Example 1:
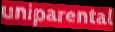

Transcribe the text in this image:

uniparental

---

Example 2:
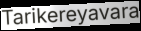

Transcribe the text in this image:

Tarikereyavara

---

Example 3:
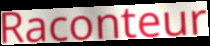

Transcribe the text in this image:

Raconteur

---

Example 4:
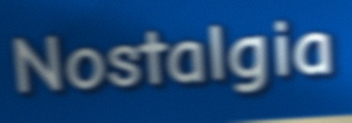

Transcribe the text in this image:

Nostalgia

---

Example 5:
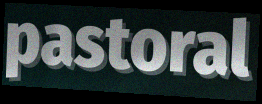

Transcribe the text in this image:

pastoral